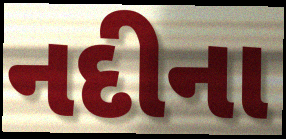
નદીના